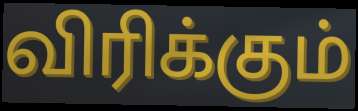
விரிக்கும்